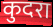
कुदरा